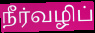
நீர்வழிப்